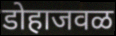
डोहाजवळ